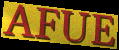
AFUE